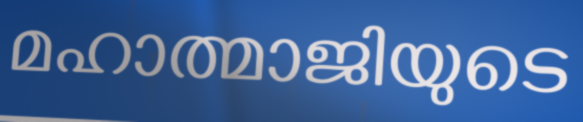
മഹാത്മാജിയുടെ